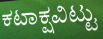
ಕಟಾಕ್ಷವಿಟ್ಟು